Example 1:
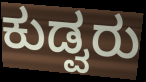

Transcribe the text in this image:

ಕುಡ್ವರು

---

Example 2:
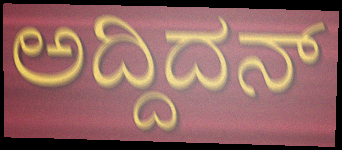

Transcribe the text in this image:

ಅದ್ದಿದನ್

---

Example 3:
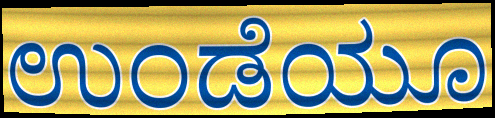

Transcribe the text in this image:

ಉಂಡೆಯೂ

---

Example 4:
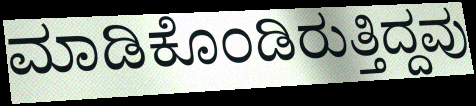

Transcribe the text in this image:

ಮಾಡಿಕೊಂಡಿರುತ್ತಿದ್ದವು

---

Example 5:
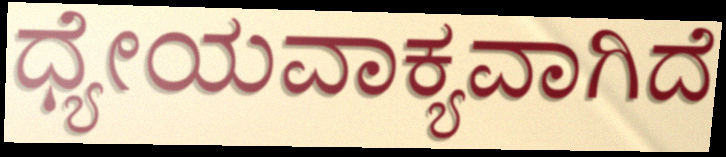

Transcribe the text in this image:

ಧ್ಯೇಯವಾಕ್ಯವಾಗಿದೆ